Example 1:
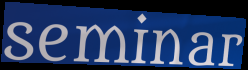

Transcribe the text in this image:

seminar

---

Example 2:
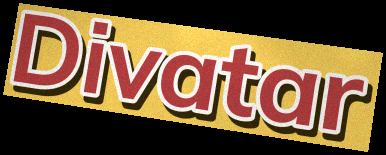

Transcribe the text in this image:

Divatar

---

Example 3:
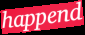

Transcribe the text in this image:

happend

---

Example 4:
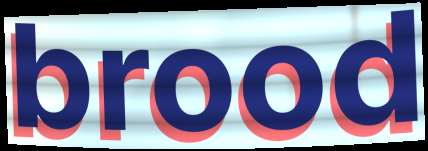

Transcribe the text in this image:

brood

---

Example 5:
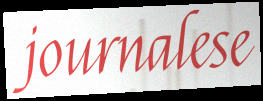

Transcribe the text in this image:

journalese